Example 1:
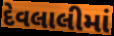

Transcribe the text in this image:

દેવલાલીમાં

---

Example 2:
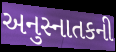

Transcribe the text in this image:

અનુસ્નાતકની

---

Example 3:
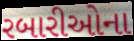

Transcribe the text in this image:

રબારીઓના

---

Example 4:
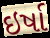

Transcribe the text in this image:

ઇર્ષા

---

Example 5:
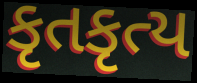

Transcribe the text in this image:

કૃતકૃત્ય